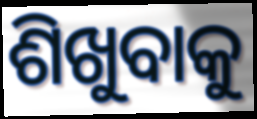
ଶିଖୁବାକୁ